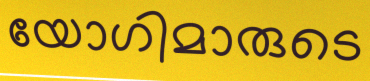
യോഗിമാരുടെ